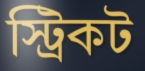
স্ট্রিকট